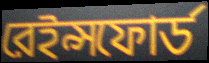
রেইন্সফোর্ড